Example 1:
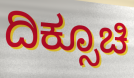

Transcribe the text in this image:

ದಿಕ್ಸೂಚಿ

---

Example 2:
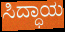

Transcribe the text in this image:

ಸಿದ್ಧಾಯ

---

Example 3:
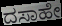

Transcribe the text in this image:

ದಸಾಹೇ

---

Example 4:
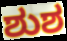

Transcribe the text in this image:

ಶುಶ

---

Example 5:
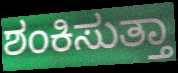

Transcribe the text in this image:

ಶಂಕಿಸುತ್ತಾ